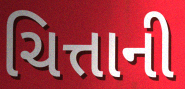
ચિત્તાની